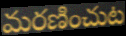
మరణించుట